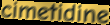
cimetidine